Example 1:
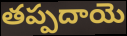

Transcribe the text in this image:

తప్పదాయె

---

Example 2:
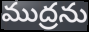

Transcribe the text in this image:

ముద్రను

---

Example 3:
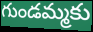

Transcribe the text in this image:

గుండమ్మకు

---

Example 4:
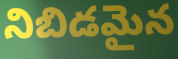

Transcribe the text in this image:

నిబిడమైన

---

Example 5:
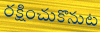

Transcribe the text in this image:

రక్షించుకొనుట